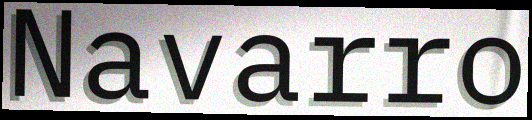
Navarro